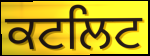
ਕਟਲਿਟ